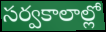
సర్వకాలాల్లో